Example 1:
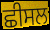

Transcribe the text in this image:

ਛੀਸਲ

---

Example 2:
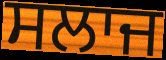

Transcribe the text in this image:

ਸਲਾਜ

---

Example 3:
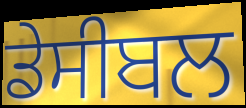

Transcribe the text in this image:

ਡੇਸੀਬਲ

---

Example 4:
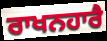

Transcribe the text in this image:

ਰਾਖਨਹਾਰੈ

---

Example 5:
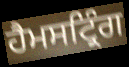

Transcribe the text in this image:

ਹੈਮਸਟ੍ਰਿੰਗ